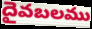
దైవబలము